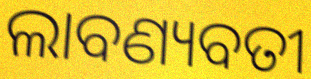
ଲାବଣ୍ୟବତୀ